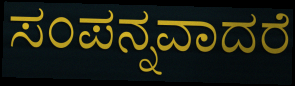
ಸಂಪನ್ನವಾದರೆ